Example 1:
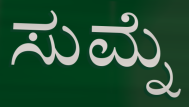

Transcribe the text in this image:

ಸುಮ್ನೆ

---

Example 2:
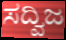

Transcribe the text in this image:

ಸದ್ವಿಜ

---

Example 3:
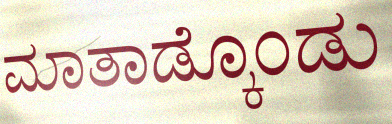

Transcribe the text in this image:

ಮಾತಾಡ್ಕೊಂಡು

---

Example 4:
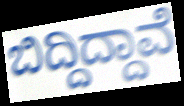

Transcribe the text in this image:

ಬಿದ್ದಿದ್ದಾವೆ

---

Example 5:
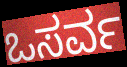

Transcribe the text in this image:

ಒಸರ್ವ